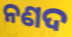
ନଣଦ